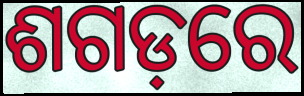
ଶଗଡ଼ରେ